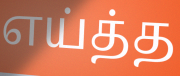
எய்த்த